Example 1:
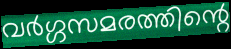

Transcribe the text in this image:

വർഗ്ഗസമരത്തിന്റെ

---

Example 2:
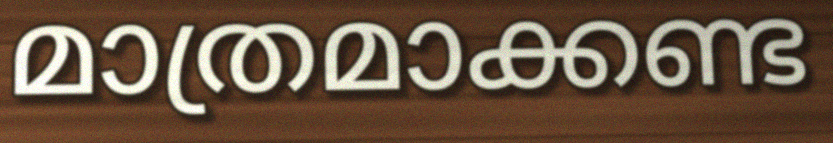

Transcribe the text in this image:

മാത്രമാക്കണ്ട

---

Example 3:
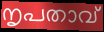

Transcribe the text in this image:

നൃപതാവ്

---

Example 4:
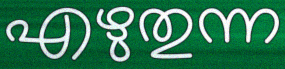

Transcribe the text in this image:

എഴുതുന്ന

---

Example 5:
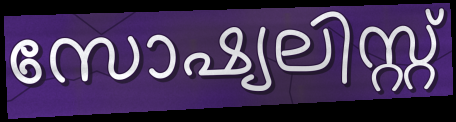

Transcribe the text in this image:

സോഷ്യലിസ്റ്റ്